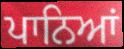
ਪਾਨਿਆਂ